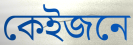
কেইজনে